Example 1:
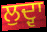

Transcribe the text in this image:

ਲੁਦ੍ਦਾ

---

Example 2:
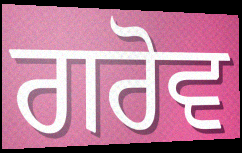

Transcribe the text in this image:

ਗਰੋਵ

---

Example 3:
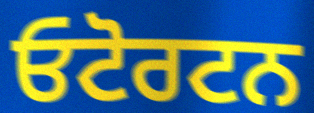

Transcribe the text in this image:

ਓਟੋਰਟਨ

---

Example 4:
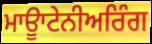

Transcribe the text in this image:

ਮਾਊਾਟੇਨੀਅਰਿੰਗ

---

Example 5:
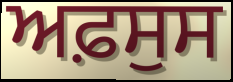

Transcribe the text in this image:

ਅਫ਼ਸੁਸ